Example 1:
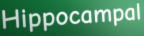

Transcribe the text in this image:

Hippocampal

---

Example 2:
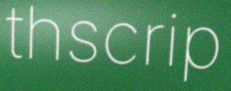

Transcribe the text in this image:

thscrip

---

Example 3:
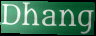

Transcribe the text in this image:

Dhang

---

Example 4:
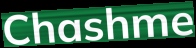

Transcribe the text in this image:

Chashme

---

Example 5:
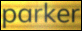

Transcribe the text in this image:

parker